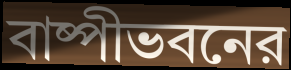
বাষ্পীভবনের